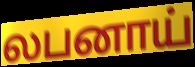
லபனாய்